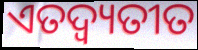
ଏତଦ୍ବ୍ୟତୀତ